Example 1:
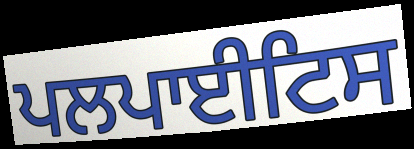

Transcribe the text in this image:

ਪਲਪਾਈਟਿਸ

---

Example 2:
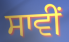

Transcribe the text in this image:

ਸਾਵੀਂ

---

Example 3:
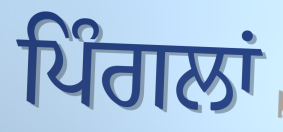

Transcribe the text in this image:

ਪਿੰਗਲਾਂ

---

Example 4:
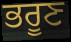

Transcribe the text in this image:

ਭਰੂਣ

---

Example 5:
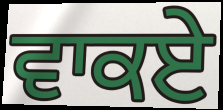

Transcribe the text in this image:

ਵਾਕਏ